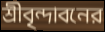
শ্রীবৃন্দাবনের